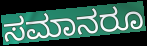
ಸಮಾನರೂ